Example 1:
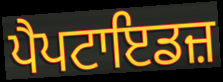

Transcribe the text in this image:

ਪੈਪਟਾਇਡਜ਼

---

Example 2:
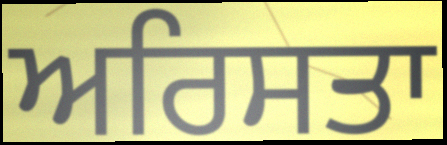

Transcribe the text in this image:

ਅਰਿਸਤਾ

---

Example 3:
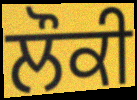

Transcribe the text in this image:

ਲੌਕੀ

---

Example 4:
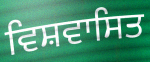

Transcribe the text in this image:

ਵਿਸ਼ਵਾਸਿਤ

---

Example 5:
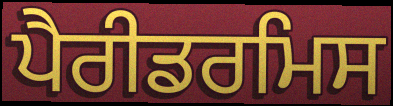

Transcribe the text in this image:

ਪੈਰੀਡਰਮਿਸ